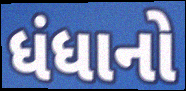
ધંધાનો